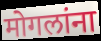
मोगलांना